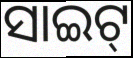
ସାଇଟ୍